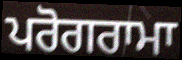
ਪਰੋਗਰਾਮਾ